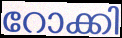
റോക്കി